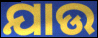
ଯାଉ